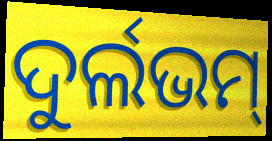
ଦୁର୍ଲଭମ୍